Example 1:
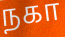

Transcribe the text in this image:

நகா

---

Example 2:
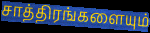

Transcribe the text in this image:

சாத்திரங்களையும்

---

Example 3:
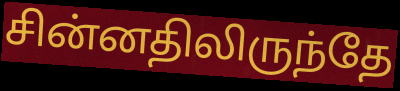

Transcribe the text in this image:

சின்னதிலிருந்தே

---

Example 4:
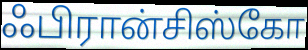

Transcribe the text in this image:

ஃபிரான்சிஸ்கோ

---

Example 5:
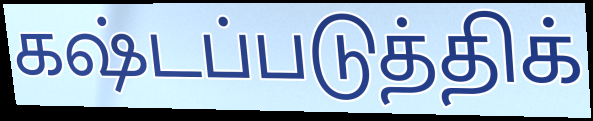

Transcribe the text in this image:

கஷ்டப்படுத்திக்